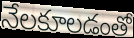
నేలకూలడంతో